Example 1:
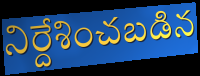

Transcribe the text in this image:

నిర్దేశించబడిన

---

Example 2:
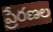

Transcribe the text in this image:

ప్రేరణల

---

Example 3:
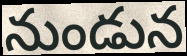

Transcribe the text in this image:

నుండున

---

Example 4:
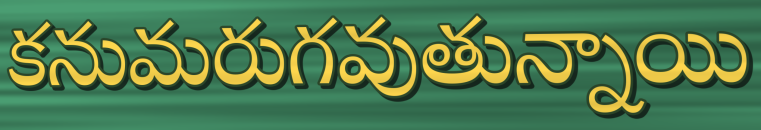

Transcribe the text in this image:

కనుమరుగవుతున్నాయి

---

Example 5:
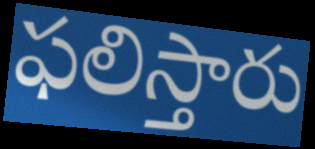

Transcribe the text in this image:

ఫలిస్తారు